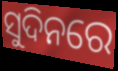
ସୁଦିନରେ